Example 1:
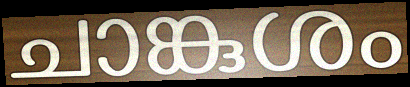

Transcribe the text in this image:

ചാങ്കുശം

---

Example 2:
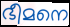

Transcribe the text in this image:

ഭീമനെ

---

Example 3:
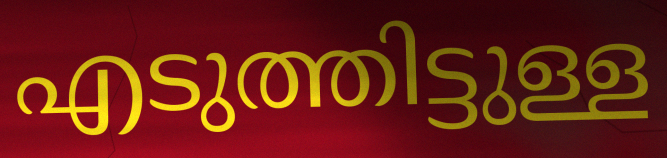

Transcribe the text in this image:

എടുത്തിട്ടുള്ള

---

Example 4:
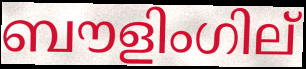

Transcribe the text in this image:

ബൗളിംഗില്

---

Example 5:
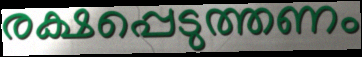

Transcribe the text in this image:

രക്ഷപ്പെടുത്തണം